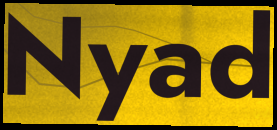
Nyad